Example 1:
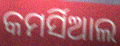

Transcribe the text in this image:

କମର୍ସିଆଲ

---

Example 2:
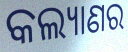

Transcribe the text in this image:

କଲ୍ୟାଣର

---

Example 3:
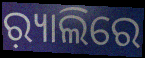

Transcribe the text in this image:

ର଼୍ୟାଲିରେ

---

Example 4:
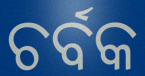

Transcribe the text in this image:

ଚର୍ବକ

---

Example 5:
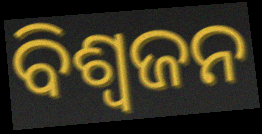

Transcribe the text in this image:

ବିଶ୍ଵଜନ